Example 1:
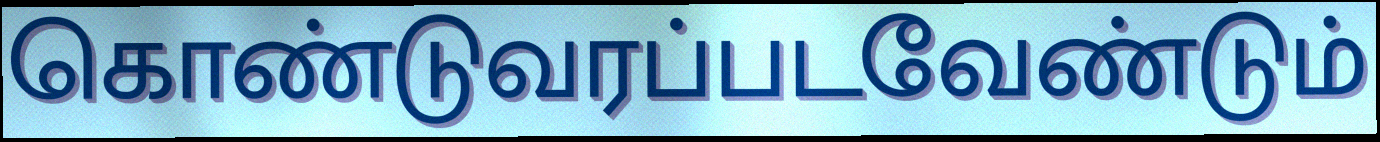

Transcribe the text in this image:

கொண்டுவரப்படவேண்டும்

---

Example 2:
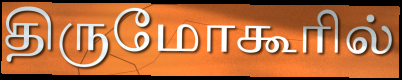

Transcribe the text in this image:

திருமோகூரில்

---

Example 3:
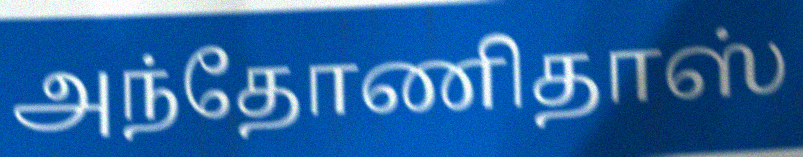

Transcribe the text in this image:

அந்தோணிதாஸ்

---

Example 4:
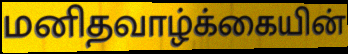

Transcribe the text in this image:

மனிதவாழ்க்கையின்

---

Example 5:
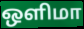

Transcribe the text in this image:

ஒளிமா